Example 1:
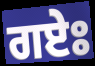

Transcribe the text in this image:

ਗਏਃ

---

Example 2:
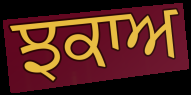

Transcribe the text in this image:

ਝਕਾਅ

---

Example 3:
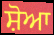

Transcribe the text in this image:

ਸ਼ੋਆ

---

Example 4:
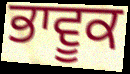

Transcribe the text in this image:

ਭਾਵੂਕ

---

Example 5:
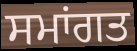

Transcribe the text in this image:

ਸਮਾਂਗਤ